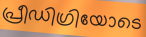
പ്രീഡിഗ്രിയോടെ